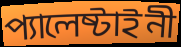
প্যালেষ্টাইনী